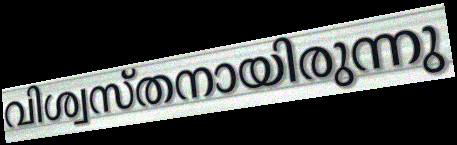
വിശ്വസ്തനായിരുന്നു